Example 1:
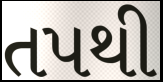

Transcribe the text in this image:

તપથી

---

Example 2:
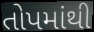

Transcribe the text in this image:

તોપમાંથી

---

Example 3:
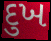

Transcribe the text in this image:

દુખ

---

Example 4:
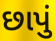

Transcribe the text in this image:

છાપું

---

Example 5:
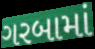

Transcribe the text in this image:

ગરબામાં